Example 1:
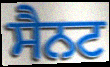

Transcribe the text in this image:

ਸੈਨਟ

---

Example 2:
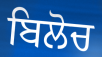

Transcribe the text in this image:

ਬਿਲੋਚ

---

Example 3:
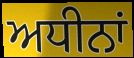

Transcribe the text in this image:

ਅਧੀਨਾਂ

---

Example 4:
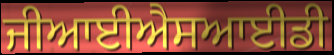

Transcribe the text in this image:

ਜੀਆਈਐਸਆਈਡੀ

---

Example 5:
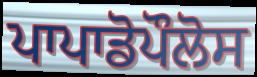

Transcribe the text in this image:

ਪਾਪਾਡੋਪੌਲੋਸ